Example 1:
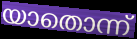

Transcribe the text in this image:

യാതൊന്ന്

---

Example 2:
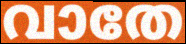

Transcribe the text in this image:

വാതേ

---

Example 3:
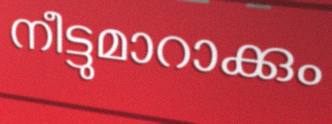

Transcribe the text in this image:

നീട്ടുമാറാക്കും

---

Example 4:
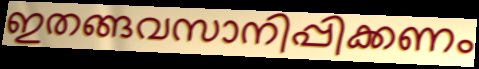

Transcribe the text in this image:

ഇതങ്ങവസാനിപ്പിക്കണം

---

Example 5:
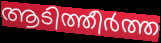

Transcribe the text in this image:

ആടിത്തീർത്ത